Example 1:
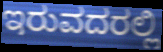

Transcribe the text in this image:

ಇರುವದರಲ್ಲಿ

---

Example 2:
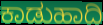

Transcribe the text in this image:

ಕಾಡುಹಾದಿ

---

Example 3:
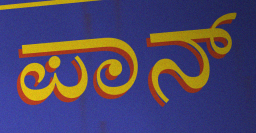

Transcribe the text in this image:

ಪಾನ್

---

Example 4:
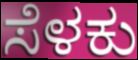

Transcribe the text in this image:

ಸೆಳಕು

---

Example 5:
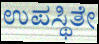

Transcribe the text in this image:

ಉಪಸ್ಥಿತೇ